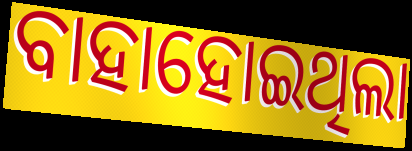
ବାହାହୋଇଥିଲା